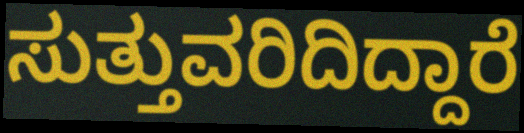
ಸುತ್ತುವರಿದಿದ್ದಾರೆ